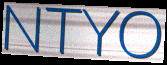
NTYO